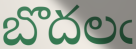
బొదలఁ